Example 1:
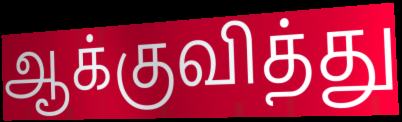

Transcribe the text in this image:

ஆக்குவித்து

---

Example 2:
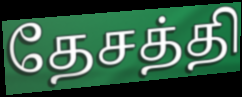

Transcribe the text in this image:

தேசத்தி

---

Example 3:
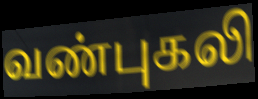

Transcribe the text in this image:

வண்புகலி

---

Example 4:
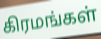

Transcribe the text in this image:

கிரமங்கள்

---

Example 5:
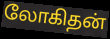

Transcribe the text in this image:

லோகிதன்